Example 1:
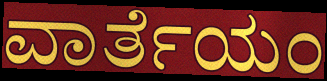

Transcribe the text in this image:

ವಾರ್ತೆಯಂ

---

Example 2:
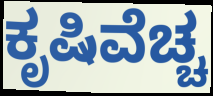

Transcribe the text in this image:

ಕೃಷಿವೆಚ್ಚ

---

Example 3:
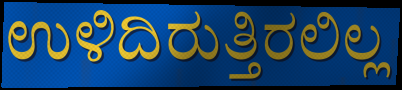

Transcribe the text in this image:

ಉಳಿದಿರುತ್ತಿರಲಿಲ್ಲ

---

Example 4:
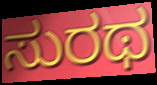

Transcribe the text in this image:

ಸುರಥ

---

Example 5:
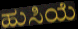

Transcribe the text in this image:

ಹುಸಿಯೆ